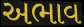
અભાવ